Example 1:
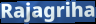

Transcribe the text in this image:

Rajagriha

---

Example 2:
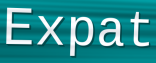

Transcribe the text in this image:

Expat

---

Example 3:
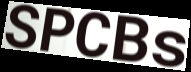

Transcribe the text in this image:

SPCBs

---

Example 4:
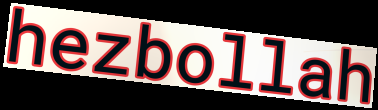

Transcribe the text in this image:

hezbollah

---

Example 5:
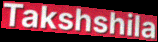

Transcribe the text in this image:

Takshshila